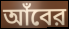
আঁবের